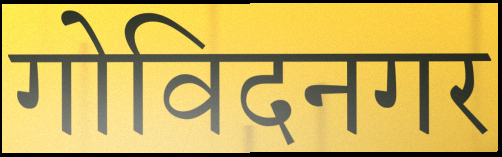
गोविदनगर